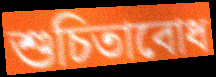
শুচিতাবোধ